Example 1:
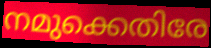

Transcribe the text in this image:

നമുക്കെതിരേ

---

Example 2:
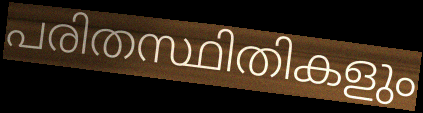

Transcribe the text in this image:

പരിതസ്ഥിതികളും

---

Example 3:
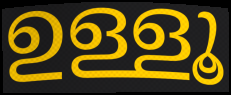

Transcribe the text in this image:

ഉള്ളൂ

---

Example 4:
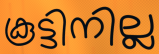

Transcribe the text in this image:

കൂട്ടിനില്ല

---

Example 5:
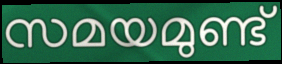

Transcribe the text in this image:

സമയമുണ്ട്